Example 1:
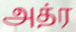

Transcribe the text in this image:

அத்ர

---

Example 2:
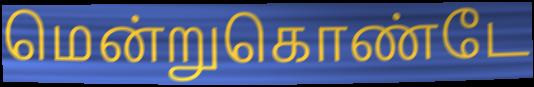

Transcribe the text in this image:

மென்றுகொண்டே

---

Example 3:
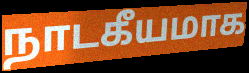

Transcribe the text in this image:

நாடகீயமாக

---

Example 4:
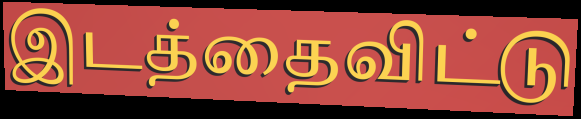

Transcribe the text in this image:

இடத்தைவிட்டு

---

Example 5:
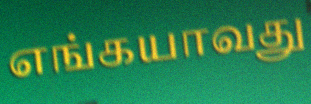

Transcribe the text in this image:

எங்கயாவது